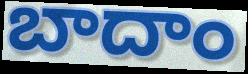
బాదాం